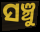
ସଞ୍ଚୁ